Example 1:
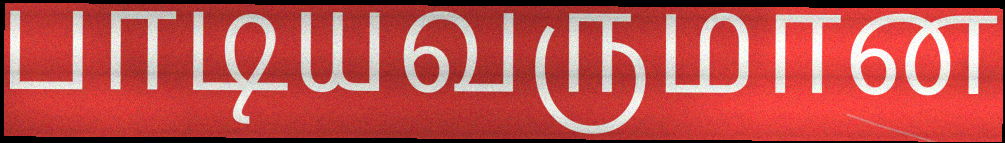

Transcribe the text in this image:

பாடியவருமான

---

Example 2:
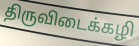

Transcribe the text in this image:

திருவிடைக்கழி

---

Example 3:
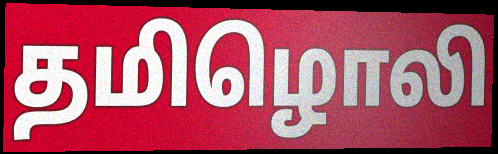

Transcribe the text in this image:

தமிழொலி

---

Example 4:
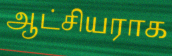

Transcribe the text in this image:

ஆட்சியராக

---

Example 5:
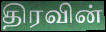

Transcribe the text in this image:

திரவின்